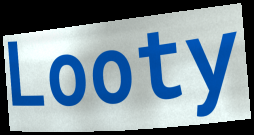
Looty